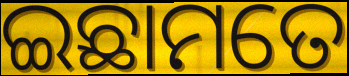
ଇଛାମତେ